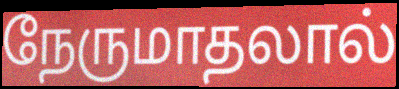
நேருமாதலால்